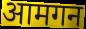
आमगन